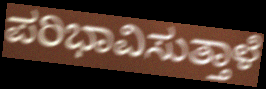
ಪರಿಭಾವಿಸುತ್ತಾಳೆ